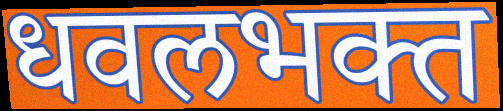
धवलभक्त